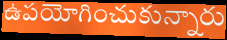
ఉపయోగించుకున్నారు